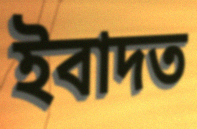
ইবাদত